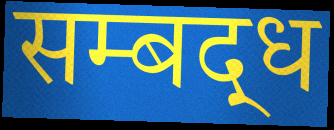
सम्बद्ध